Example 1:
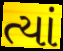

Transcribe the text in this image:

ત્‍યાં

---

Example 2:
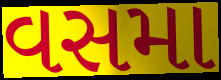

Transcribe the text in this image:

વસમા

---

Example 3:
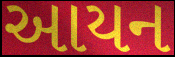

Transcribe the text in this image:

આયન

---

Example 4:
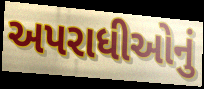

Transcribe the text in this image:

અપરાધીઓનું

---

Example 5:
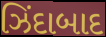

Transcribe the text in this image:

ઝિંદાબાદ